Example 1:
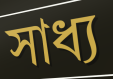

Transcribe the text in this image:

সাধ্য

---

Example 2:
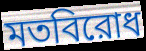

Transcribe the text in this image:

মতবিরোধ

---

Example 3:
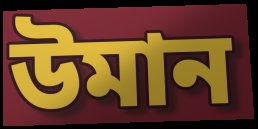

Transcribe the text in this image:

উমান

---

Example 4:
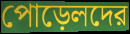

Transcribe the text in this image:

পোড়েলদের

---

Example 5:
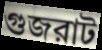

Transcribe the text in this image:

গুজরাট